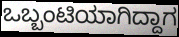
ಒಬ್ಬಂಟಿಯಾಗಿದ್ದಾಗ